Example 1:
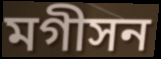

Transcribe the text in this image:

মগীসন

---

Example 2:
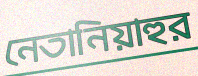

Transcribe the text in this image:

নেতানিয়াহুর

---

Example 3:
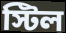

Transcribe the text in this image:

স্টিল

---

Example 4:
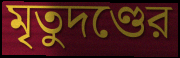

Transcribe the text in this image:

মৃতুদণ্ডের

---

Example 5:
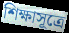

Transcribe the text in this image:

শিক্ষাসূত্রে